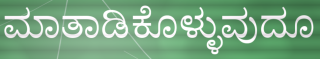
ಮಾತಾಡಿಕೊಳ್ಳುವುದೂ